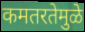
कमतरतेमुळे